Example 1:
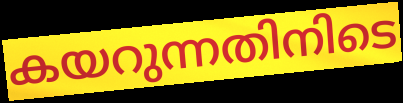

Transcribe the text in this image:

കയറുന്നതിനിടെ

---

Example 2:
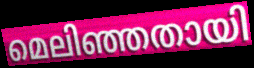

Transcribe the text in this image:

മെലിഞ്ഞതായി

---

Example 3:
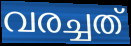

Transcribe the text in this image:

വരച്ചത്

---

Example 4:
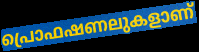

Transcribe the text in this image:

പ്രൊഫഷണലുകളാണ്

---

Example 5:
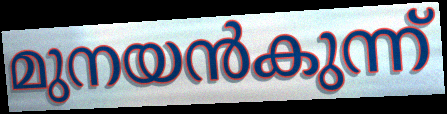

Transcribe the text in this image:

മുനയൻകുന്ന്